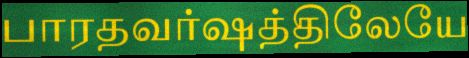
பாரதவர்ஷத்திலேயே